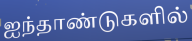
ஐந்தாண்டுகளில்